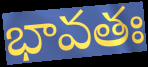
భావతః